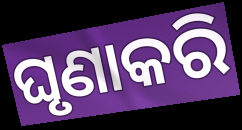
ଘୃଣାକରି